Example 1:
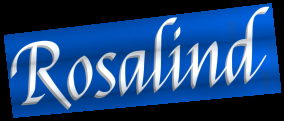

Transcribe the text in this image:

Rosalind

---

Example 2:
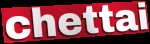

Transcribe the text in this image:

chettai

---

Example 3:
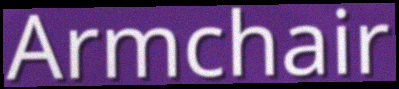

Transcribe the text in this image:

Armchair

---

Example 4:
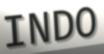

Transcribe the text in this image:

INDO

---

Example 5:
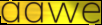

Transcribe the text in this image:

aawe